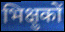
भिक्षुकों